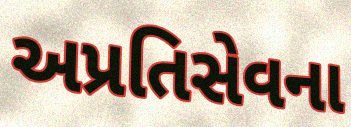
અપ્રતિસેવના